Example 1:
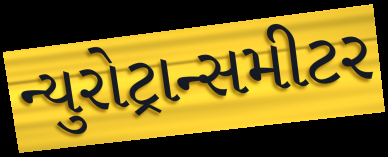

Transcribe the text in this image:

ન્યુરોટ્રાન્સમીટર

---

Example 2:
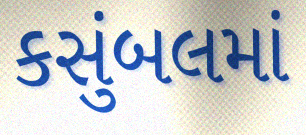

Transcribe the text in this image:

કસુંબલમાં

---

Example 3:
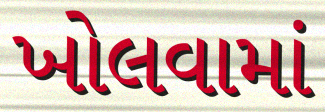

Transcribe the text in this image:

ખોલવામાં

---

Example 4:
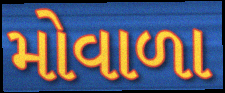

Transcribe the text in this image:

મોવાળા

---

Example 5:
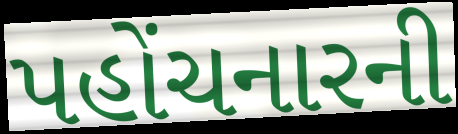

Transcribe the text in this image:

પહોંચનારની